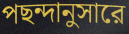
পছন্দানুসারে